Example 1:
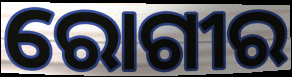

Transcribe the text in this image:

ରୋଗୀର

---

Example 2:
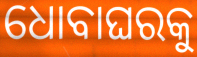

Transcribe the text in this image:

ଧୋବାଘରକୁ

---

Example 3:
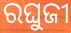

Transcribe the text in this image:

ରଘୁଜୀ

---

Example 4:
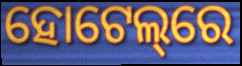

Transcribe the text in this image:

ହୋଟେଲ୍‌ରେ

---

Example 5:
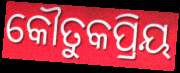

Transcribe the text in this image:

କୌତୁକପ୍ରିୟ